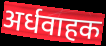
अर्धवाहक